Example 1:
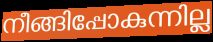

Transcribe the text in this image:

നീങ്ങിപ്പോകുന്നില്ല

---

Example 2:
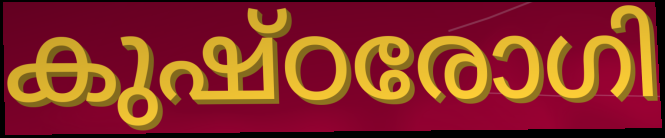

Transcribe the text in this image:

കുഷ്ഠരോഗി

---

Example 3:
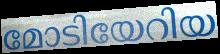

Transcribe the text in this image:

മോടിയേറിയ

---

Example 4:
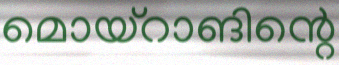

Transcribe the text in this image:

മൊയ്റാങിന്റെ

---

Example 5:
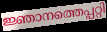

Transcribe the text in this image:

ജ്ഞാനത്തെപ്പറ്റി